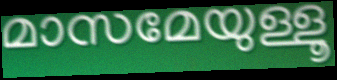
മാസമേയുള്ളൂ